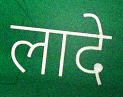
लादे